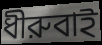
ধীরুবাই